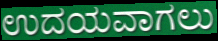
ಉದಯವಾಗಲು